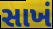
સાખં